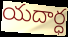
యదార్ధ